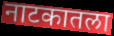
नाटकातला